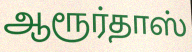
ஆரூர்தாஸ்